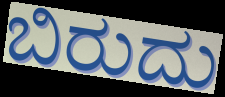
ಬಿರುದು